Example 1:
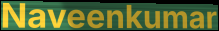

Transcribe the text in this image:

Naveenkumar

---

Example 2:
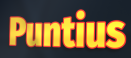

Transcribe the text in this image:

Puntius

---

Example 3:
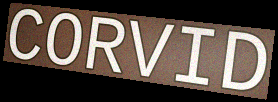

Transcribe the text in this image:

CORVID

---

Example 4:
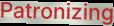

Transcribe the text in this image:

Patronizing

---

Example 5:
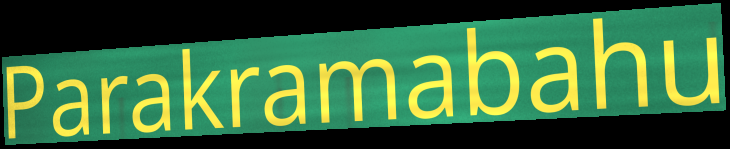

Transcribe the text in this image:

Parakramabahu